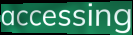
accessing